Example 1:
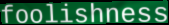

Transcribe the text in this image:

foolishness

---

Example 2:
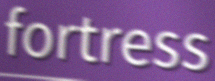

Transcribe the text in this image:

fortress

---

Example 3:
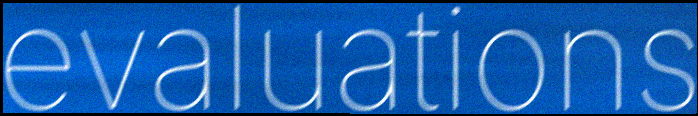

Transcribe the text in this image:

evaluations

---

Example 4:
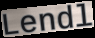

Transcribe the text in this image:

Lendl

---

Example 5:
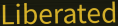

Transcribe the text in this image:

Liberated